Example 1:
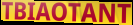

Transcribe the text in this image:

TBIAOTANT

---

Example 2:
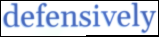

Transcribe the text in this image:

defensively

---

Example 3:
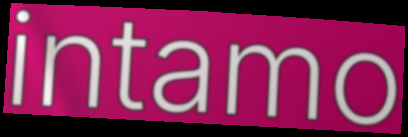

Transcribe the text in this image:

intamo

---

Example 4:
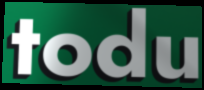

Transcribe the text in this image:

todu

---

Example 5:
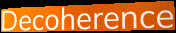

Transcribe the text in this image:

Decoherence